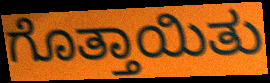
ಗೊತ್ತಾಯಿತು